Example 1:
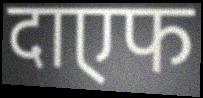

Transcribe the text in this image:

दाएफ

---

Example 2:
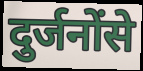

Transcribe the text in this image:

दुर्जनोंसे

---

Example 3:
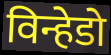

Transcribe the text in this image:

विन्हेडो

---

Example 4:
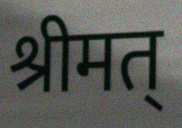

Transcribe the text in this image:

श्रीमत्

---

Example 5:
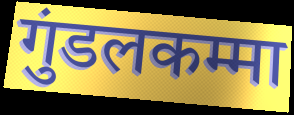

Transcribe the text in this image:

गुंडलकम्मा